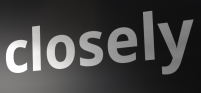
closely